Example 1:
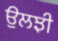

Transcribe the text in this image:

ਉਲਝੀ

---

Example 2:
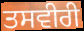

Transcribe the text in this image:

ਤਸਵੀਰੀ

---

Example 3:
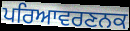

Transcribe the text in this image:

ਪਰਿਆਵਰਣਨਕ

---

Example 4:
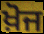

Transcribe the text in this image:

ਖ਼ੋਜ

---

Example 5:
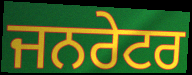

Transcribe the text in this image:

ਜਨਰੇਟਰ